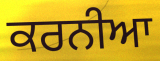
ਕਰਨੀਆ